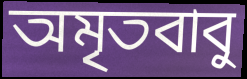
অমৃতবাবু